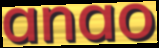
anao